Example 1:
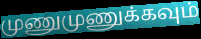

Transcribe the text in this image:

முணுமுணுக்கவும்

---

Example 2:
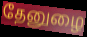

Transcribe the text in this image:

தேனுழை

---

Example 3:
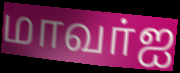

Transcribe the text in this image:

மாவர்ஐ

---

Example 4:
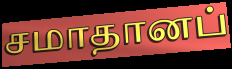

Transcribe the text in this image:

சமாதானப்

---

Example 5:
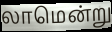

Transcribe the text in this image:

லாமென்று